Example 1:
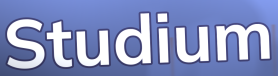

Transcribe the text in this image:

Studium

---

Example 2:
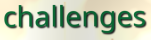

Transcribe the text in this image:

challenges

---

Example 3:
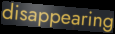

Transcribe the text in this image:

disappearing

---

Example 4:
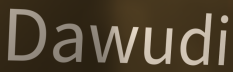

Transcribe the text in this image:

Dawudi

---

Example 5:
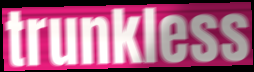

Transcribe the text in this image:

trunkless